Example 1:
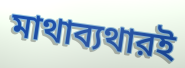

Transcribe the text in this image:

মাথাব্যথারই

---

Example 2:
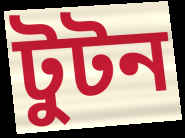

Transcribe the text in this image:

টুটন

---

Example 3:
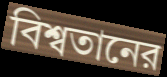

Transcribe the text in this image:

বিশ্বতানের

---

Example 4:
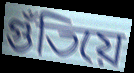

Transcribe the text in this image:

গুঁতিয়ে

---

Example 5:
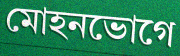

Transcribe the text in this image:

মোহনভোগে